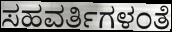
ಸಹವರ್ತಿಗಳಂತೆ